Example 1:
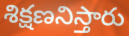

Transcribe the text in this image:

శిక్షణనిస్తారు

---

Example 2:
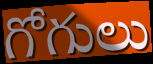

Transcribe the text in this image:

గోగులు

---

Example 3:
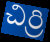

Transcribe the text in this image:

చిర్రి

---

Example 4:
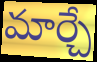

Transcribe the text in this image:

మార్చే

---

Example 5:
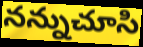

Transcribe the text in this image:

నన్నుచూసి